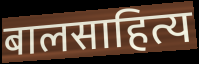
बालसाहित्य